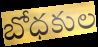
బోధకుల